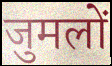
जुमलों